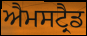
ਐਮਸਟ੍ਰੈਡ